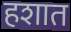
हशात